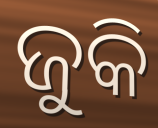
ଜୁକି